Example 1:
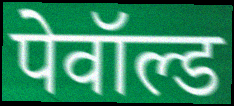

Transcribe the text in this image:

पेवॉल्ड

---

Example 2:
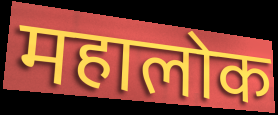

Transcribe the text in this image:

महालोक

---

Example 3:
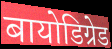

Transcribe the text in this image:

बायोडिग्रेड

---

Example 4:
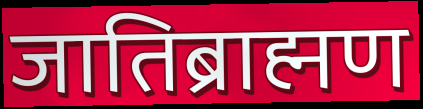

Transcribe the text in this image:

जातिब्राह्मण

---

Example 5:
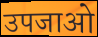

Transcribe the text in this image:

उपजाओ